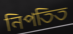
নিপতিত